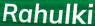
Rahulki